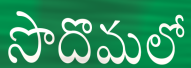
సొదొమలో